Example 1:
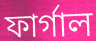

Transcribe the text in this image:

ফার্গাল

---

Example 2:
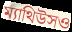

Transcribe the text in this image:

ম্যাথিউসও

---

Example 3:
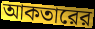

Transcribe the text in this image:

আকতারের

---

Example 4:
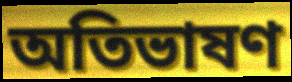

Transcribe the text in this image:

অতিভাষণ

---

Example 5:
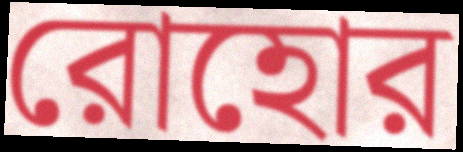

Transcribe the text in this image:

রোহোর